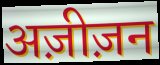
अज़ीज़न